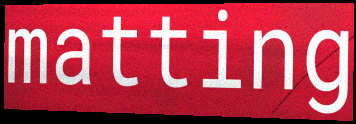
matting